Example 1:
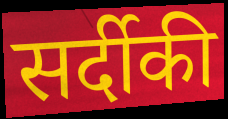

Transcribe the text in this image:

सर्दीकी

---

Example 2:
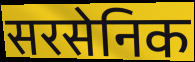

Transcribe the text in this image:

सरसेनिक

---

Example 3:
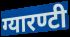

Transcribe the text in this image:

ग्यारण्टी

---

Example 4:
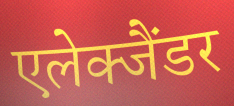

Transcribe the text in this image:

एलेक्जैंडर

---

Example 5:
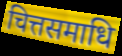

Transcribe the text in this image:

चित्तसमाधि